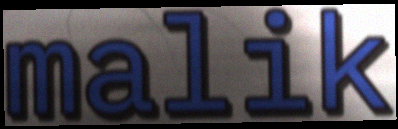
malik